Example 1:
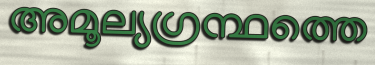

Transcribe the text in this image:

അമൂല്യഗ്രന്ഥത്തെ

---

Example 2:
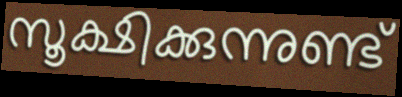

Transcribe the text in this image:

സൂക്ഷിക്കുന്നുണ്ട്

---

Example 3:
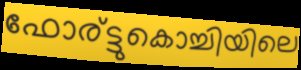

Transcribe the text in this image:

ഫോര്ട്ടുകൊച്ചിയിലെ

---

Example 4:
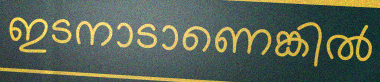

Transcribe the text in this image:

ഇടനാടാണെങ്കിൽ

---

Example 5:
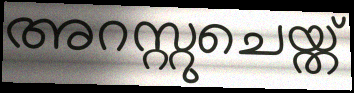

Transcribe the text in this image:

അറസ്റ്റുചെയ്ത്